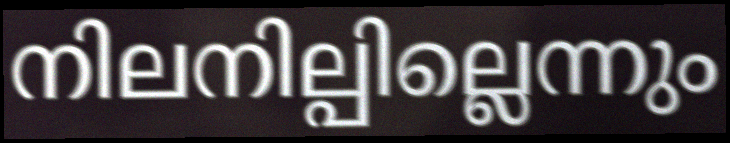
നിലനില്പില്ലെന്നും